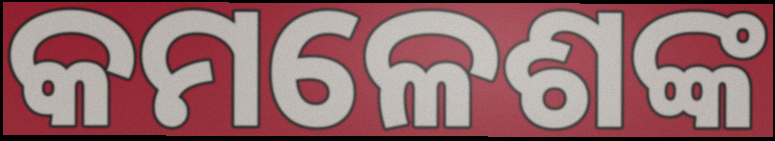
କମଳେଶଙ୍କ